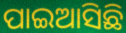
ପାଇଆସିଛି